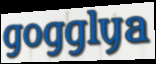
gogglya